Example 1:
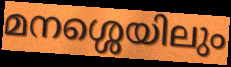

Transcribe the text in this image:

മനശ്ശെയിലും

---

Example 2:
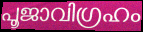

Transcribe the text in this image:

പൂജാവിഗ്രഹം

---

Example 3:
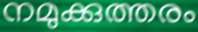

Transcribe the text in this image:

നമുക്കുത്തരം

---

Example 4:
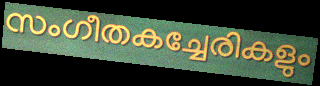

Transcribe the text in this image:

സംഗീതകച്ചേരികളും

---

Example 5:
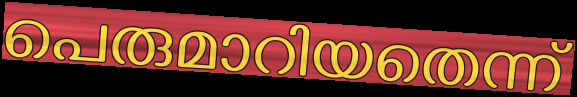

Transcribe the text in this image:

പെരുമാറിയതെന്ന്